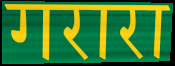
गरारा